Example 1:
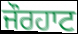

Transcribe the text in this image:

ਜੌਰਹਾਟ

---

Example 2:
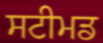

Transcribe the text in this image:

ਸਟੀਮਡ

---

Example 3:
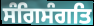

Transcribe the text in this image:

ਸੰਗਿਸੰਗਤਿ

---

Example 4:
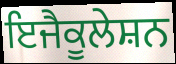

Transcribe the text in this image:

ਇਜੈਕੂਲੇਸ਼ਨ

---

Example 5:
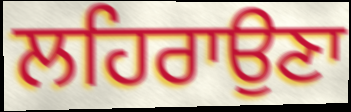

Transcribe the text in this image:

ਲਹਿਰਾਉਣਾ